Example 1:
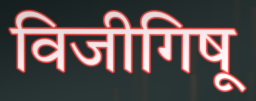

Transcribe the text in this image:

विजीगिषू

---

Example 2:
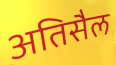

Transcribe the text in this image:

अतिसैल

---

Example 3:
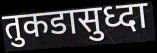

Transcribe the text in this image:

तुकडासुध्दा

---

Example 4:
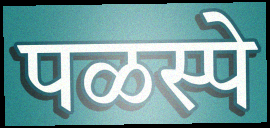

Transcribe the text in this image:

पळस्पे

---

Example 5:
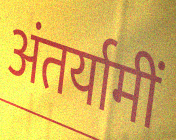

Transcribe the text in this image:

अंतर्यामीं